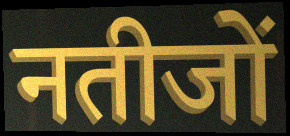
नतीजों